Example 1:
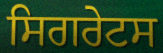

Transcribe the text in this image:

ਸਿਗਰੇਟਸ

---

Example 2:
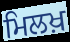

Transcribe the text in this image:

ਮਿਲਖ਼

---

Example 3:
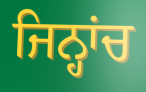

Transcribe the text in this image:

ਜਿਨ੍ਹਾਂਚ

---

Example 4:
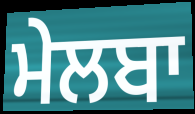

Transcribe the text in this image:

ਮੇਲਬਾ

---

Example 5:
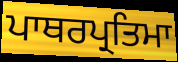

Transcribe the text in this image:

ਪਾਥਰਪ੍ਰਤਿਮਾ